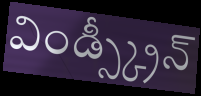
విండ్స్క్రీన్